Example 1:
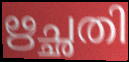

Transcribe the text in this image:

ഋച്ഛതി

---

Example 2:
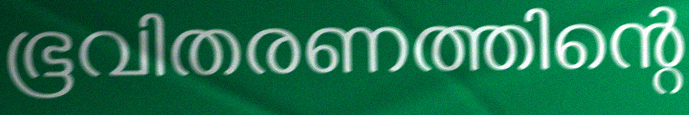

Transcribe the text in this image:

ഭൂവിതരണത്തിന്റെ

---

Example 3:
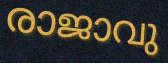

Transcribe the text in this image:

രാജാവു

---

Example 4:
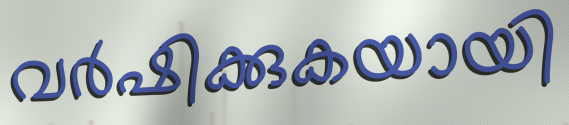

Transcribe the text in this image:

വർഷിക്കുകയായി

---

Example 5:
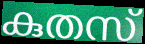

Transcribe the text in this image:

കുതസ്